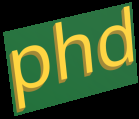
phd